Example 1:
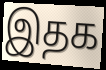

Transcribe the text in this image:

இதக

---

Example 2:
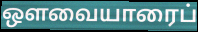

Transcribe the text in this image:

ஔவையாரைப்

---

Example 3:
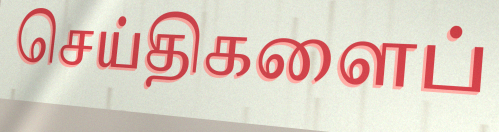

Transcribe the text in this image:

செய்திகளைப்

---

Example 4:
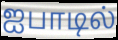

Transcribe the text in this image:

ஐபாடில்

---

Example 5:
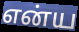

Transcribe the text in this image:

என்ய